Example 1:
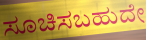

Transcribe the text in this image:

ಸೂಚಿಸಬಹುದೇ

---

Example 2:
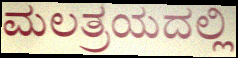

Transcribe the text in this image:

ಮಲತ್ರಯದಲ್ಲಿ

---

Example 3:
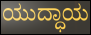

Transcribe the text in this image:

ಯುದ್ಧಾಯ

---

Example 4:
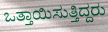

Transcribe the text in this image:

ಒತ್ತಾಯಿಸುತ್ತಿದ್ದರು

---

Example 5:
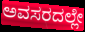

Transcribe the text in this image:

ಅವಸರದಲ್ಲೇ